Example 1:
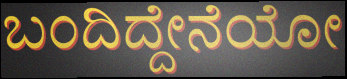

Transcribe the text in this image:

ಬಂದಿದ್ದೇನೆಯೋ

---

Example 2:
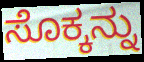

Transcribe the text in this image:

ಸೊಕ್ಕನ್ನು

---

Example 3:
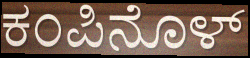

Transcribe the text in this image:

ಕಂಪಿನೊಳ್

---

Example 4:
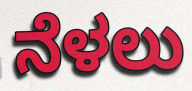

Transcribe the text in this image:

ನೆಳಲು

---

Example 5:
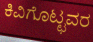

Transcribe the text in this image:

ಕಿವಿಗೊಟ್ಟವರ